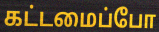
கட்டமைப்போ